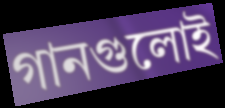
গানগুলোই